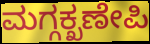
ಮಗ್ಗಕ್ಖಣೇಪಿ